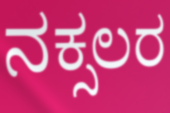
ನಕ್ಸಲರ